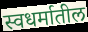
स्वधर्मातील